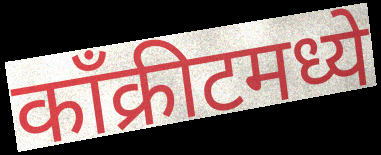
काँक्रीटमध्ये